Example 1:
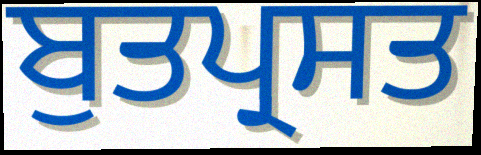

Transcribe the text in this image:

ਬੁਤਪ੍ਰਸਤ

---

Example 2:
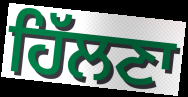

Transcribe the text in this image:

ਹਿੱਲਣਾ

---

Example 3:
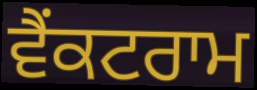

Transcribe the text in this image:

ਵੈਂਕਟਰਾਮ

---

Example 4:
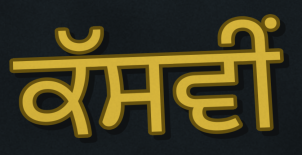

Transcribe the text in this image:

ਕੱਸਵੀਂ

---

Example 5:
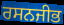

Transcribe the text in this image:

ਰਸਨਜੀਭ